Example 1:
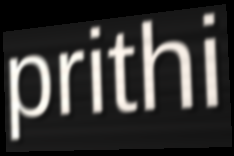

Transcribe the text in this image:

prithi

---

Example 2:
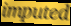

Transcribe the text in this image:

imputed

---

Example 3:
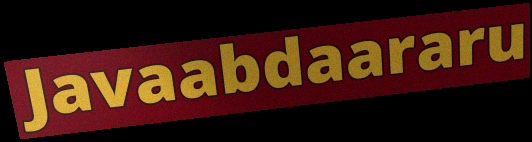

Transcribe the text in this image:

Javaabdaararu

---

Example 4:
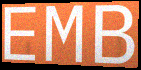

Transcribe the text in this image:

EMB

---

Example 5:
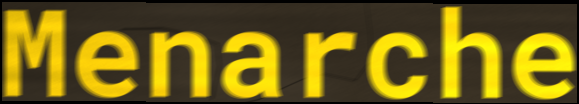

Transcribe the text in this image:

Menarche